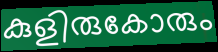
കുളിരുകോരും